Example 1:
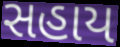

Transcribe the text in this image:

સહાય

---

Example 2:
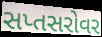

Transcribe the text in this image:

સપ્તસરોવર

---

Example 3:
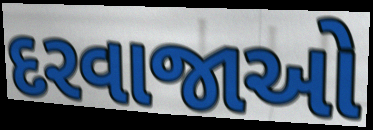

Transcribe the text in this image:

દરવાજાઓ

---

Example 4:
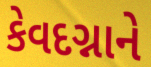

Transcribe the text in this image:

કેવદગ્નાને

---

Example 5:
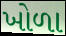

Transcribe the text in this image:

ખોળા